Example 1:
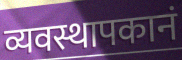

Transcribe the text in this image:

व्यवस्थापकानं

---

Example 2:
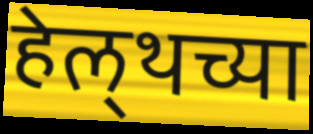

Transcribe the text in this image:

हेल्थच्या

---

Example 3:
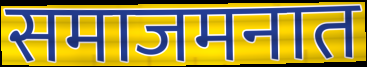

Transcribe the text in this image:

समाजमनात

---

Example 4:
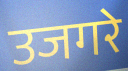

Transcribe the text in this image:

उजगरे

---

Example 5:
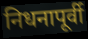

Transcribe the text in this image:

निधनापूर्वी